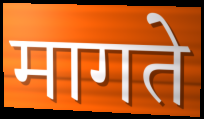
मागते